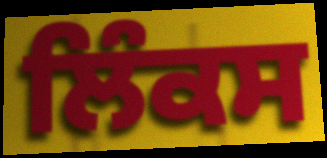
ਲਿੰਕਸ